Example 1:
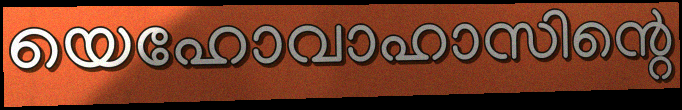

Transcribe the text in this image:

യെഹോവാഹാസിന്റെ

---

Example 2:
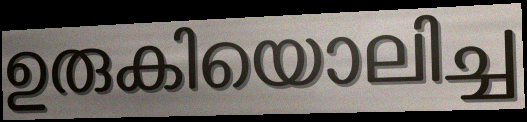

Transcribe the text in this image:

ഉരുകിയൊലിച്ച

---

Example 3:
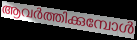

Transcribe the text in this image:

ആവർത്തിക്കുമ്പോൾ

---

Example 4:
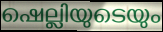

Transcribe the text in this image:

ഷെല്ലിയുടെയും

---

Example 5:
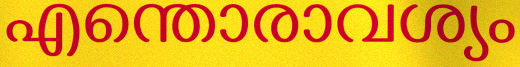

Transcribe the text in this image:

എന്തൊരാവശ്യം